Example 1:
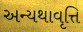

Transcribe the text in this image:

અન્યથાવૃત્તિ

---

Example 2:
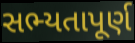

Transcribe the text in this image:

સભ્યતાપૂર્ણ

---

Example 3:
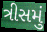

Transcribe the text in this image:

ત્રીસમું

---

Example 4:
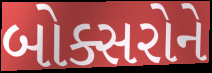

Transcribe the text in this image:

બોક્સરોને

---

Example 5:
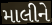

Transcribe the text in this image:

માલીને